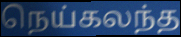
நெய்கலந்த